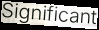
Significant